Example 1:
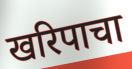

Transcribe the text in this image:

खरिपाचा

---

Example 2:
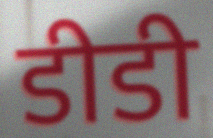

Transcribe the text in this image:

डीडी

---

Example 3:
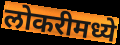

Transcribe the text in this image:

लोकरीमध्ये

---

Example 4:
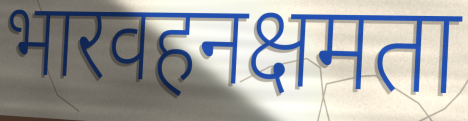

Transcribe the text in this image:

भारवहनक्षमता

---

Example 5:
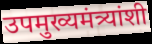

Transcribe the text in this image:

उपमुख्यमंत्र्यांशी